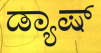
ಡ್ಯಾಷ್